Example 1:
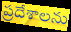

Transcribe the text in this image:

ప్రదేశాలను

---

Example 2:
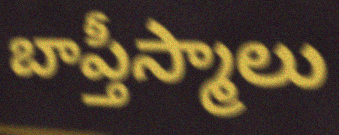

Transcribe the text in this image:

బాప్తీస్మాలు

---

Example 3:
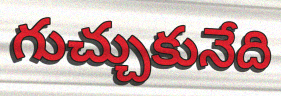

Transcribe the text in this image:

గుచ్చుకునేది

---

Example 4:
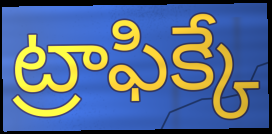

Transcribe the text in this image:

ట్రాఫిక్కే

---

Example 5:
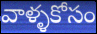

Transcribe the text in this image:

వాళ్ళకోసం